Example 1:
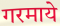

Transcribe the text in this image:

गरमाये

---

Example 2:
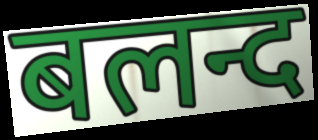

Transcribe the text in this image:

बलन्द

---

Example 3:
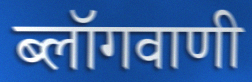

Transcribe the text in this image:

ब्लॉगवाणी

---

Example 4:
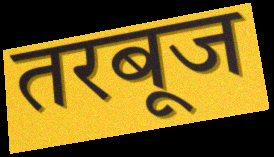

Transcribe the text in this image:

तरबूज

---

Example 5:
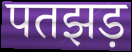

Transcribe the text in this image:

पतझड़